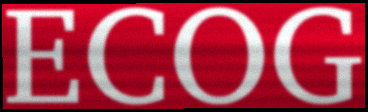
ECOG